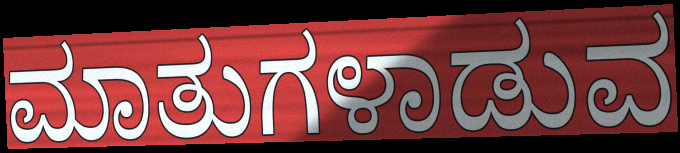
ಮಾತುಗಳಾಡುವ